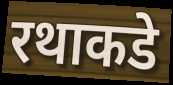
रथाकडे